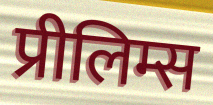
प्रीलिम्स